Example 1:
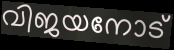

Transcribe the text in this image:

വിജയനോട്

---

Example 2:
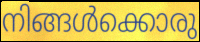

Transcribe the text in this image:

നിങ്ങൾക്കൊരു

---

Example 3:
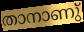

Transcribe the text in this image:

താനാണു്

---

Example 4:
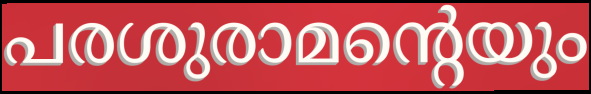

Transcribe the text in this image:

പരശുരാമന്റെയും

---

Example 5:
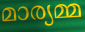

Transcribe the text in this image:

മാര്യമ്മ